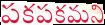
పకపకమని